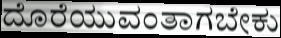
ದೊರೆಯುವಂತಾಗಬೇಕು